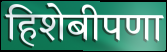
हिशेबीपणा